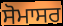
ਸੋਮਾਸਰ